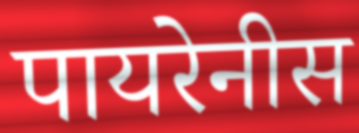
पायरेनीस